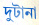
দুটানা